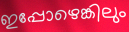
ഇപ്പോഴെങ്കിലും